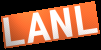
LANL